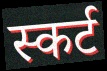
स्कर्ट